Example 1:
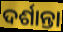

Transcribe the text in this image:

ଦର୍ଶାନ୍ତା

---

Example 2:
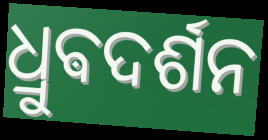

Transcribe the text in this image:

ଧ୍ରୁଵଦର୍ଶନ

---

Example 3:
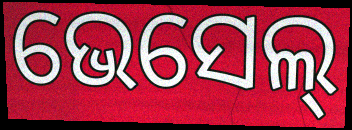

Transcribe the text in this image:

ଭେସେଲ୍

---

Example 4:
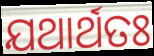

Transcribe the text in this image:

ଯଥାର୍ଥତଃ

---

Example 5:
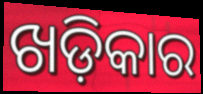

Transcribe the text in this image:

ଖଡ଼ିକାର